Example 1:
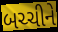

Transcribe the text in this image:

બચ્ચીને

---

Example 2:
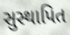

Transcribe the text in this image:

સુસ્થાપિત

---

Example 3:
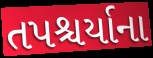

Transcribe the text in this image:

તપશ્ચર્યાના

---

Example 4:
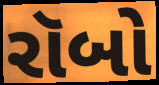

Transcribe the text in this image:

રૉબો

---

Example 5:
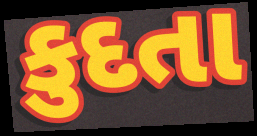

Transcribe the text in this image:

કુદતા